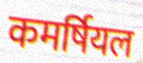
कमर्षियल